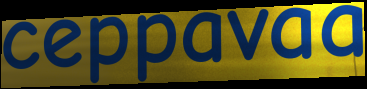
ceppavaa